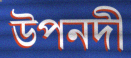
উপনদী